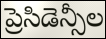
ప్రెసిడెన్సీల